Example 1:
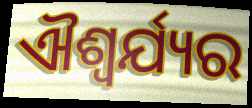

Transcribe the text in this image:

ଐଶ୍ଵର୍ଯ୍ୟର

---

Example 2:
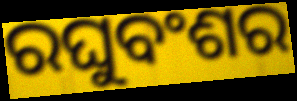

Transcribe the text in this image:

ରଘୁବଂଶର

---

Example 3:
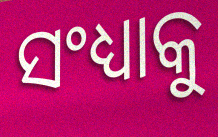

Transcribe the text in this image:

ସଂଧ୍ୟାକୁ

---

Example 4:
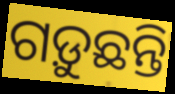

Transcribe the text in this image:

ଗଡ଼ୁଛନ୍ତି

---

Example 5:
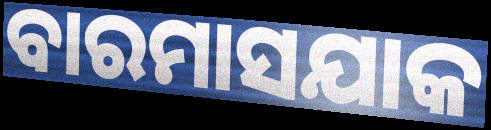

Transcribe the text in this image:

ବାରମାସଯାକ